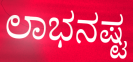
ಲಾಭನಷ್ಟ